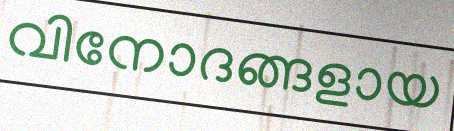
വിനോദങ്ങളായ